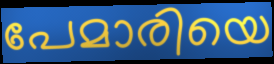
പേമാരിയെ